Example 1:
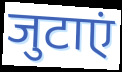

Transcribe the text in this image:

जुटाएं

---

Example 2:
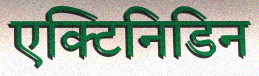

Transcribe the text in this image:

एक्टिनिडिन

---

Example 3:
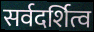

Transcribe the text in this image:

सर्वदर्शित्व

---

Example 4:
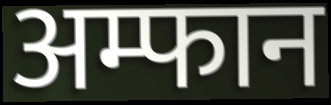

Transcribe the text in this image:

अम्‍फान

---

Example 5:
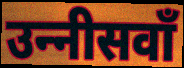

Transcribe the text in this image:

उन्‍नीसवाँ